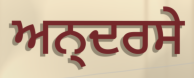
ਅਨ੍ਦਰਸੇ